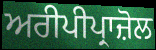
ਅਰੀਪੀਪ੍ਰਾਜ਼ੋਲ